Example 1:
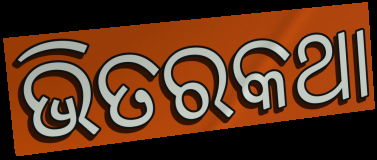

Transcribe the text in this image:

ଭିତରକଥା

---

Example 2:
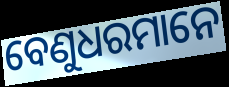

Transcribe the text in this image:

ବେଣୁଧରମାନେ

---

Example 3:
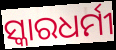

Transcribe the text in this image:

ସ୍କାରଧର୍ମୀ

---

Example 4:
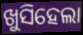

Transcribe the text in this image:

ଖୁସିହେଲା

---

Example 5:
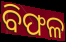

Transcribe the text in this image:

ବିଫଳ